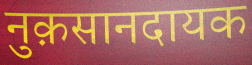
नुक़सानदायक